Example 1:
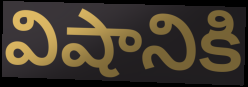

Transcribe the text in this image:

విషానికి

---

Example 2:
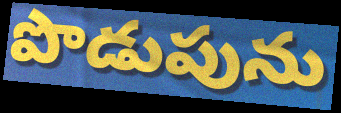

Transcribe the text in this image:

పొడుపును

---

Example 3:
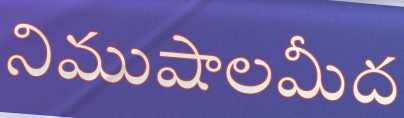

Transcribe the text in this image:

నిముషాలమీద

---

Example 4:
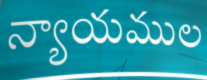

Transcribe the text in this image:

న్యాయముల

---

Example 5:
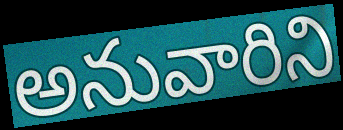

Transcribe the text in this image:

అనువారిని